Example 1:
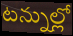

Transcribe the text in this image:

టన్నుల్లో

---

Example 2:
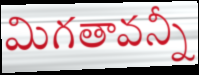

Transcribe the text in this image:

మిగతావన్నీ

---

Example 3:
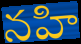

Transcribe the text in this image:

నహి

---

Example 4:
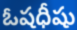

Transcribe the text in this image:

ఓషధీషు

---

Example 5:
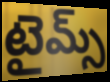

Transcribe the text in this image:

టైమ్స్